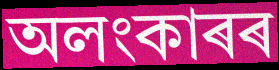
অলংকাৰৰ